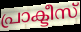
പ്രാക്ടീസ്